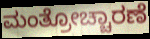
ಮಂತ್ರೋಚ್ಚಾರಣೆ